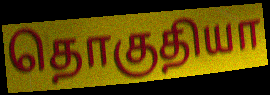
தொகுதியா